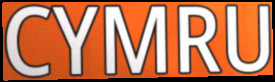
CYMRU